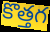
కొత్తగ